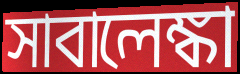
সাবালেঙ্কা